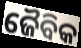
ଜୈବିକ